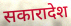
सकारादेश